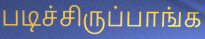
படிச்சிருப்பாங்க